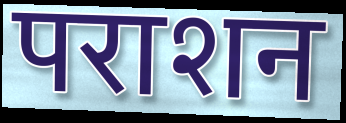
पराशन